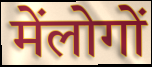
मेंलोगों